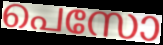
പെസോ